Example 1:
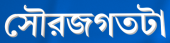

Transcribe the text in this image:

সৌরজগতটা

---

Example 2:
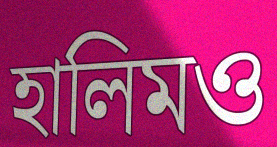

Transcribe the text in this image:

হালিমও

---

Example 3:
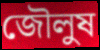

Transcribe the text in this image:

জৌলুষ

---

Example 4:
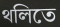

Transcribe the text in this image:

থলিতে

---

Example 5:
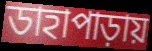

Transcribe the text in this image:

ডাহাপাড়ায়